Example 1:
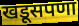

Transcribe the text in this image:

खडूसपणा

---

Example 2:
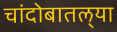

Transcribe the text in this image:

चांदोबातल्या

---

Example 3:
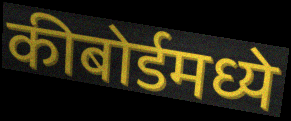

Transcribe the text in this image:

कीबोर्डमध्ये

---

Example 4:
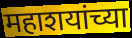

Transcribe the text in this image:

महाशयांच्या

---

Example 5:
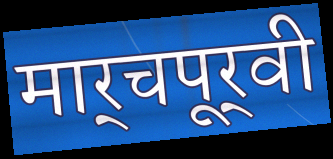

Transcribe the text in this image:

मार्चपूर्वी